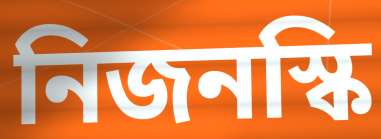
নিজনস্কি